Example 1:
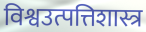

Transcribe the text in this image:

विश्वउत्पत्तिशास्त्र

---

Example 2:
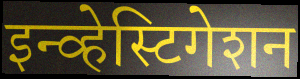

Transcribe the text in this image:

इन्व्हेस्टिगेशन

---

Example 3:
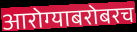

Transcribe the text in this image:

आरोग्याबरोबरच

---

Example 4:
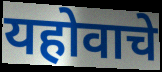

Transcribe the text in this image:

यहोवाचे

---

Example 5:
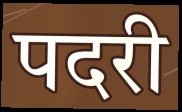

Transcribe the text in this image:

पदरी